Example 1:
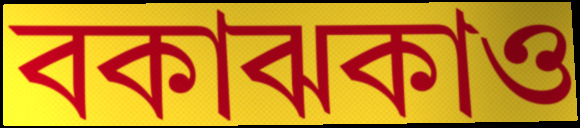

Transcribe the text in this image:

বকাঝকাও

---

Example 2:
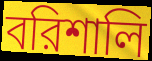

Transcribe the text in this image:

বরিশালি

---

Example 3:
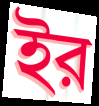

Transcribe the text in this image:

ইর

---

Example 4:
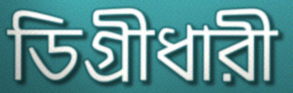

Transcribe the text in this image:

ডিগ্রীধারী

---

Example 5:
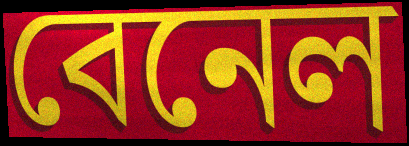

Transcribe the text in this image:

বেনেল